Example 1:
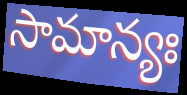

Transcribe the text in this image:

సామాన్యః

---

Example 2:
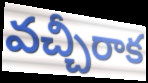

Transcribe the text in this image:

వచ్చీరాక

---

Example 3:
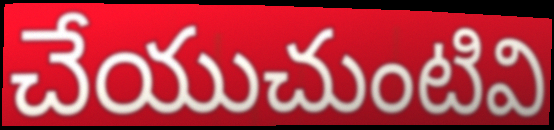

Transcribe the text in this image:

చేయుచుంటివి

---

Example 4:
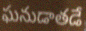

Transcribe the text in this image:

ఘనుడాతడే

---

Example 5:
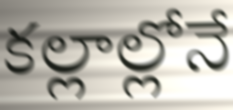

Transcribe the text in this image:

కల్లాల్లోనే